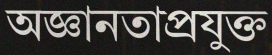
অজ্ঞানতাপ্রযুক্ত